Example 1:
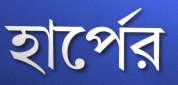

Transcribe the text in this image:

হার্পের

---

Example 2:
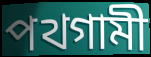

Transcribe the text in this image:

পথগামী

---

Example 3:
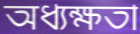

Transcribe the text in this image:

অধ্যক্ষতা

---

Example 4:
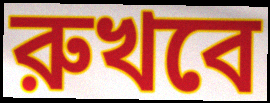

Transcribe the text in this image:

রুখবে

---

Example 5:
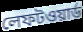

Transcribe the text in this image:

লেফটওয়ার্ড